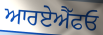
ਆਰਏਐੱਫਓ